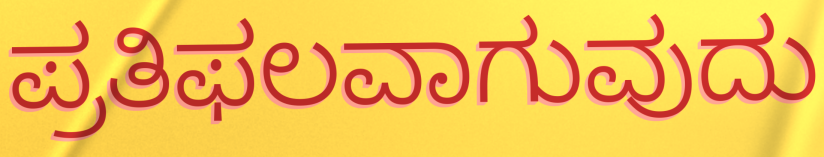
ಪ್ರತಿಫಲವಾಗುವುದು